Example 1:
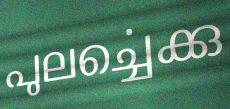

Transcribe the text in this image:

പുലൎച്ചെക്കു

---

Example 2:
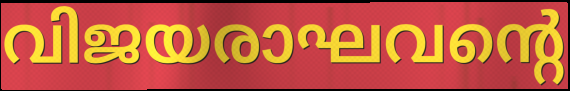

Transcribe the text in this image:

വിജയരാഘവന്റെ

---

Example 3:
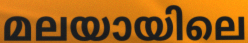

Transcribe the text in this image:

മലയായിലെ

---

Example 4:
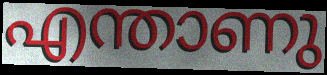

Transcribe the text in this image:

എന്താണു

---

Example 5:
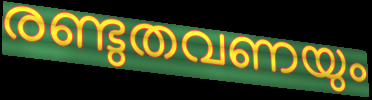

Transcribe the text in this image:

രണ്ടുതവണയും